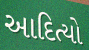
આદિત્યો